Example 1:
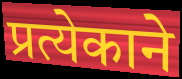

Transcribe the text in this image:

प्रत्येकाने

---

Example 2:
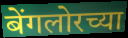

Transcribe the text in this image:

बेंगलोरच्या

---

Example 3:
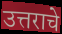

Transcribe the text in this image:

उत्तराचे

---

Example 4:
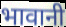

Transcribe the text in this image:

भावानी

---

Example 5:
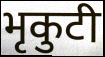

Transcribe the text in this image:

भृकुटी